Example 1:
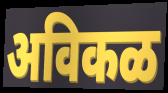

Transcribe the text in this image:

अविकळ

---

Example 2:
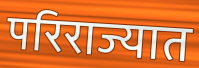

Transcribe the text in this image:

परिराज्यात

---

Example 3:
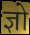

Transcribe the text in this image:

ज्ञो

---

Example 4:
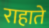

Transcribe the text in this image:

राहाते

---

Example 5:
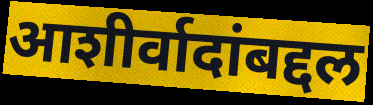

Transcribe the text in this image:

आशीर्वादांबद्दल